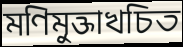
মণিমুক্তাখচিত